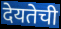
देयतेची